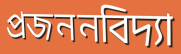
প্রজননবিদ্যা